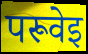
परूवेइ